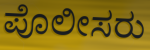
ಪೊಲೀಸರು